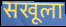
सखूला